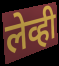
लेव्ही